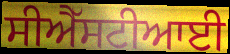
ਸੀਐੱਸਟੀਆਈ